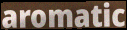
aromatic